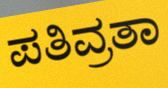
ಪತಿವ್ರತಾ